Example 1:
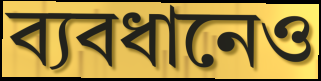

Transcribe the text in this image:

ব্যবধানেও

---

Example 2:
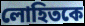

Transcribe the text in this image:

লোহিতকে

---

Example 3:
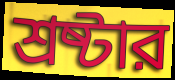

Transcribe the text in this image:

শ্রষ্টার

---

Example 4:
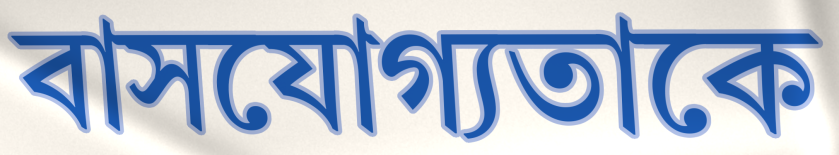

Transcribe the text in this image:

বাসযোগ্যতাকে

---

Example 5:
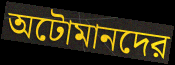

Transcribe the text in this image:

অটোমানদের